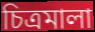
চিত্রমালা